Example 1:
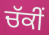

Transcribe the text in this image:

ਚੱਕੀਂ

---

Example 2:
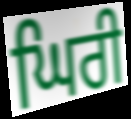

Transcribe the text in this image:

ਘਿਰੀ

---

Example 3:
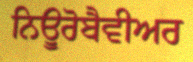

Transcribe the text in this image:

ਨਿਊਰੋਬੈਵੀਅਰ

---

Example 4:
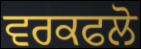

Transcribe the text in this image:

ਵਰਕਫਲੋ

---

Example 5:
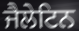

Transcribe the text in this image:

ਜੈਲੇਟਿਨ